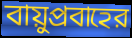
বায়ুপ্রবাহের